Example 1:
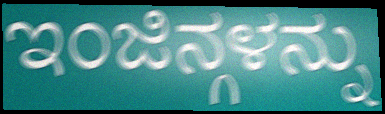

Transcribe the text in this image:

ಇಂಜಿನ್ಗಳನ್ನು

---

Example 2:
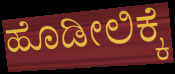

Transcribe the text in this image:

ಹೊಡೀಲಿಕ್ಕೆ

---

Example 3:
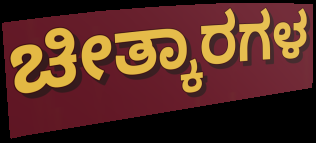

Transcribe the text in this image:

ಚೀತ್ಕಾರಗಳ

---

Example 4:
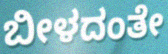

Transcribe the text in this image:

ಬೀಳದಂತೇ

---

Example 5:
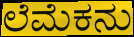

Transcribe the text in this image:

ಲೆಮೆಕನು